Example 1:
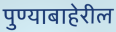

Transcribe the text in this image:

पुण्याबाहेरील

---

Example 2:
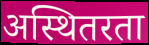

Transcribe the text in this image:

अस्थितरता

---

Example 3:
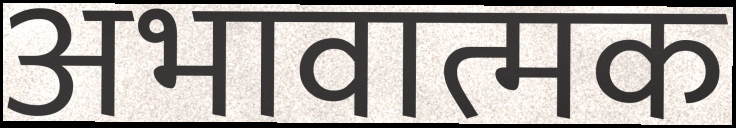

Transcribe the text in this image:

अभावात्मक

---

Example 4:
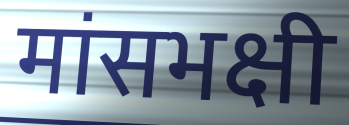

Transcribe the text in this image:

मांसभक्षी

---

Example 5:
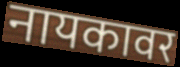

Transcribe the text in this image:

नायकावर